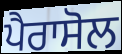
ਪੈਰਾਸੋਲ